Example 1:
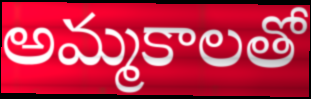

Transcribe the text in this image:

అమ్మకాలతో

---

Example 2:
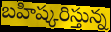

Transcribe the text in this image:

బహిష్కరిస్తున్న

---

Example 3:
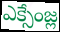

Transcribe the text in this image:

ఎక్సేంజ్ల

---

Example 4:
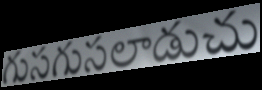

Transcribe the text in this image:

గుసగుసలాడుచు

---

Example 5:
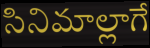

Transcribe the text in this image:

సినిమాల్లాగే